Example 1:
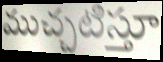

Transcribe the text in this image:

ముచ్చటిస్తూ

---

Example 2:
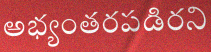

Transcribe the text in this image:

అభ్యంతరపడిరని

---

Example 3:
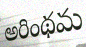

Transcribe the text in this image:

అరింథమ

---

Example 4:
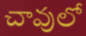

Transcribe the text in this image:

చావులో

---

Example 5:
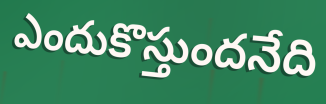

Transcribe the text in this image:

ఎందుకొస్తుందనేది